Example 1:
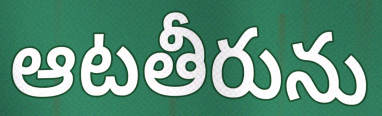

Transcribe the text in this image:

ఆటతీరును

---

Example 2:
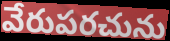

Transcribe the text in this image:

వేరుపరచును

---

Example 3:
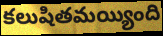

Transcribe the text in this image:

కలుషితమయ్యింది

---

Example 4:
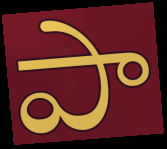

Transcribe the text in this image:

పా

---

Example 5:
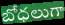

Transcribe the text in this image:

బోధలుగా